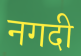
नगदी